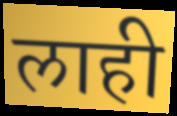
लाही